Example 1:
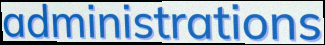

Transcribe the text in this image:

administrations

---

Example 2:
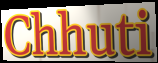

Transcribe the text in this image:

Chhuti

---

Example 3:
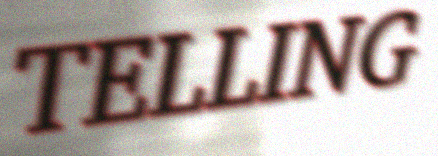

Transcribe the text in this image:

TELLING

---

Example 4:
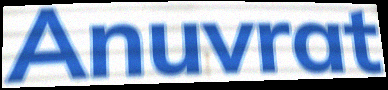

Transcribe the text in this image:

Anuvrat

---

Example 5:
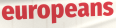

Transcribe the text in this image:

europeans